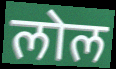
लोल